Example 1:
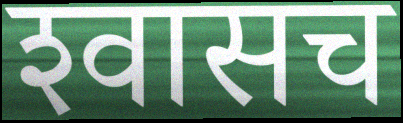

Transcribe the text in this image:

श्‍वासच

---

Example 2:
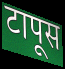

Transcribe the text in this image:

टापूस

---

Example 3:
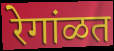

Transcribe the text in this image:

रेगांळत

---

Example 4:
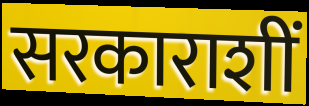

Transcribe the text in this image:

सरकाराशीं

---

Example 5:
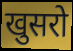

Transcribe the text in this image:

खुसरो